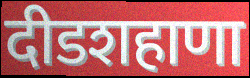
दीडशहाणा